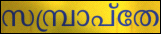
സമ്പ്രാപ്തേ